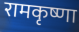
रामकृष्णा